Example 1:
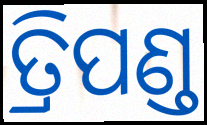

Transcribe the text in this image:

ତ୍ରିପଣ୍ଡ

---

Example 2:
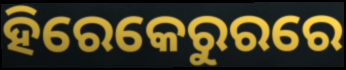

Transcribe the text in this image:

ହିରେକେରୁରରେ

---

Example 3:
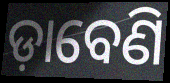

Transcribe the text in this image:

ଡ଼ାବେଣି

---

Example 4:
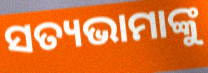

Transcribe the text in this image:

ସତ୍ୟଭାମାଙ୍କୁ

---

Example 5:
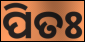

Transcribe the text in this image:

ପିତଃ